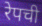
रेपची